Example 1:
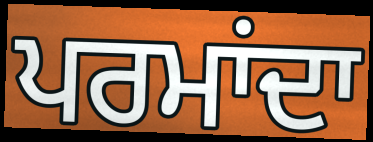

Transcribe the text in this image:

ਪਰਮਾਂਦਾ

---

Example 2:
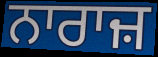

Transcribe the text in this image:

ਨਾਰਾਜ਼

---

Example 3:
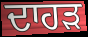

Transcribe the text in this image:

ਦਾਹੜ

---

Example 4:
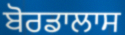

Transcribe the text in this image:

ਬੋਰਡਾਲਾਸ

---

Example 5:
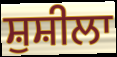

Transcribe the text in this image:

ਸ਼ੁਸ਼ੀਲਾ